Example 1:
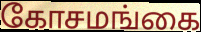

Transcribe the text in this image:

கோசமங்கை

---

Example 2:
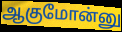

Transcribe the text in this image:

ஆகுமோன்னு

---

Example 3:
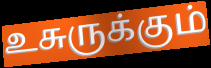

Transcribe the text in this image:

உசுருக்கும்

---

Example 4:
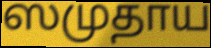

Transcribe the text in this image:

ஸமுதாய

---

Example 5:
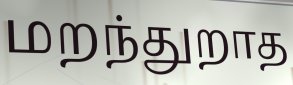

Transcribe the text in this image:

மறந்துறாத